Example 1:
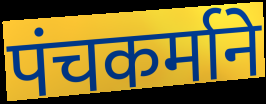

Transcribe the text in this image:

पंचकर्माने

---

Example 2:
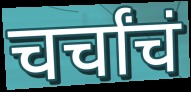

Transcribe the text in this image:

चर्चांचं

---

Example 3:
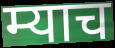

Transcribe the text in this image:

म्याच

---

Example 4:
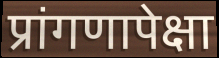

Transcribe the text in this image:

प्रांगणापेक्षा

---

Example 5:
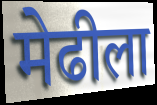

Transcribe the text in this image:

मेढीला